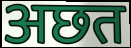
अछत